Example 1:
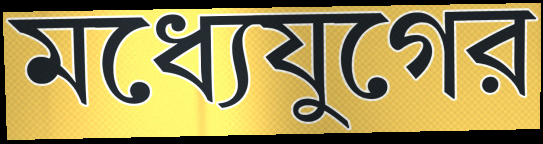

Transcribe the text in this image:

মধ্যেযুগের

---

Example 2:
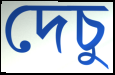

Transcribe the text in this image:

দেচু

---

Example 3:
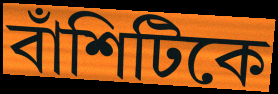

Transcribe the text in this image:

বাঁশিটিকে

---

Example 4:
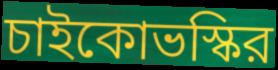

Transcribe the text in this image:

চাইকোভস্কির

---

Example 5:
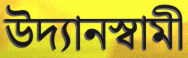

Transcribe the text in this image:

উদ্যানস্বামী